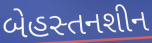
બેહસ્તનશીન